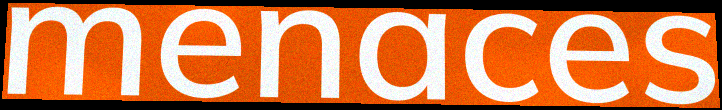
menaces